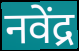
नवेंद्र